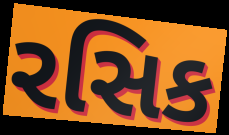
રસિક